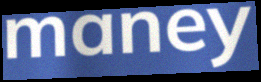
maney